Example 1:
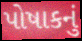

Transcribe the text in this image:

પોષાકનું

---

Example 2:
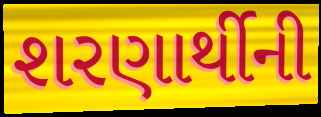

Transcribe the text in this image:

શરણાર્થીની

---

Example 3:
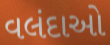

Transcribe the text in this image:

વલંદાઓ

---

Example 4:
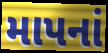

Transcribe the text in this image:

માપનાં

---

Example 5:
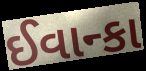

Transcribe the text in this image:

ઈવાન્કા